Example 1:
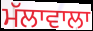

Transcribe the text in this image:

ਮੱਲਾਵਾਲਾ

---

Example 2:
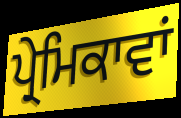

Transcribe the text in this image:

ਪ੍ਰੇਮਿਕਾਵਾਂ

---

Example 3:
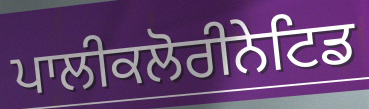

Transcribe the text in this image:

ਪਾਲੀਕਲੋਰੀਨੇਟਿਡ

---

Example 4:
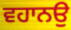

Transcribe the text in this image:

ਵਹਾਨਉ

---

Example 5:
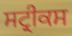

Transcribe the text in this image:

ਸਟ੍ਰੀਕਸ